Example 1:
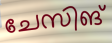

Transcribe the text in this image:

ചേസിങ്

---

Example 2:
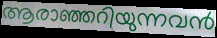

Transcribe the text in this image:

ആരാഞ്ഞറിയുന്നവൻ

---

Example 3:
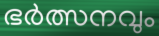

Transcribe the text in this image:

ഭർത്സനവും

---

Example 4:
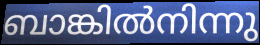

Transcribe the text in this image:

ബാങ്കിൽനിന്നു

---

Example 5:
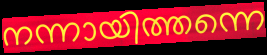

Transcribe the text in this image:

നന്നായിത്തന്നെ